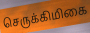
செருக்கிமிகை